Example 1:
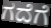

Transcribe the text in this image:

ಗದೆಗೆ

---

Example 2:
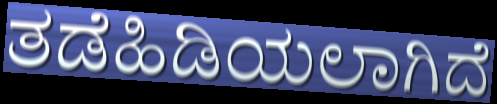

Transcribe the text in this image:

ತಡೆಹಿಡಿಯಲಾಗಿದೆ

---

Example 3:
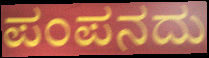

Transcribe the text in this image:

ಪಂಪನದು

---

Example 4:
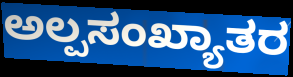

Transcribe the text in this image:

ಅಲ್ಪಸಂಖ್ಯಾತರ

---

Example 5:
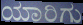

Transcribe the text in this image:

ಯಾರಿಗು